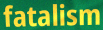
fatalism